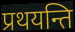
प्रथयन्ति